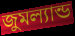
জুমল্যান্ড